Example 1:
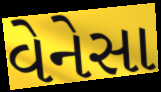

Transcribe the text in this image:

વેનેસા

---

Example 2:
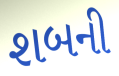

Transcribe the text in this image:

શબની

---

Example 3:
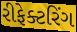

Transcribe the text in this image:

રીફેક્ટરિંગ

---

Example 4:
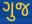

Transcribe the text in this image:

ગુજ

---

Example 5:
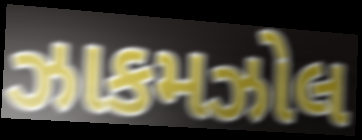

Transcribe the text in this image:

ઝાકમઝોલ